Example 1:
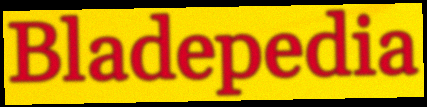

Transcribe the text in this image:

Bladepedia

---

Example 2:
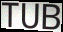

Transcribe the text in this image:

TUB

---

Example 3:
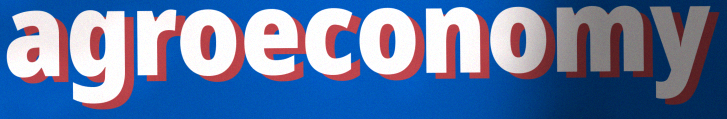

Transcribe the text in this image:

agroeconomy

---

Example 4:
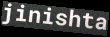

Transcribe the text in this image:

jinishta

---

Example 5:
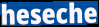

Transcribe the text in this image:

heseche